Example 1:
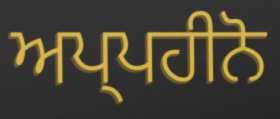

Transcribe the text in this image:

ਅਪ੍ਪਹੀਨੋ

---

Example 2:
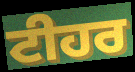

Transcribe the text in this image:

ਟੀਹਰ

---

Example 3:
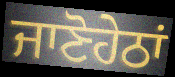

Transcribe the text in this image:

ਜਾਣੋਹੇਠਾਂ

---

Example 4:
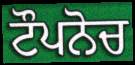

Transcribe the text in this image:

ਟੌਪਨੋਚ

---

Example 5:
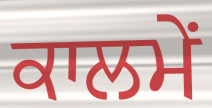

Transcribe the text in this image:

ਕਾਲਮੇਂ